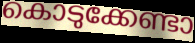
കൊടുക്കേണ്ടാ